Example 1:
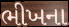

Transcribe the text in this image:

ભીખના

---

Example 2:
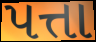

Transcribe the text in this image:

પત્તા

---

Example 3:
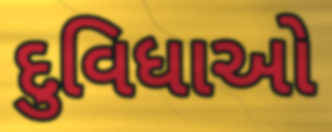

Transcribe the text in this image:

દુવિધાઓ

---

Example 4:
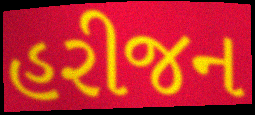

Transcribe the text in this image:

હરીજન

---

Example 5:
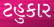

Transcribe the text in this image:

ટહુકાર